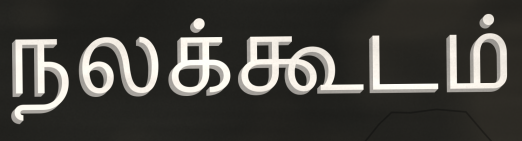
நலக்கூடம்